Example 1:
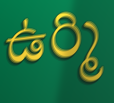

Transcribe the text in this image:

ఉర్మి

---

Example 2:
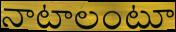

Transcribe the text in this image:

నాటాలంటూ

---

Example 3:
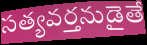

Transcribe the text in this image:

సత్యవర్తనుడైతే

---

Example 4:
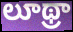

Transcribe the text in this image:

లూథ్రా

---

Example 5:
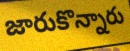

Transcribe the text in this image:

జారుకొన్నారు